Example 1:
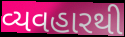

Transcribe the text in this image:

વ્યવહારથી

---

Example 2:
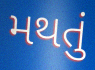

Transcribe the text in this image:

મથતું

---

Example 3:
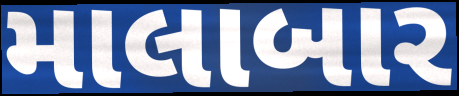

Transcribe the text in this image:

માલાબાર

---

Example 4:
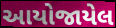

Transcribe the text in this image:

આયોજાયેલ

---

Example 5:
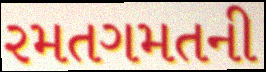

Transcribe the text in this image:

રમતગમતની